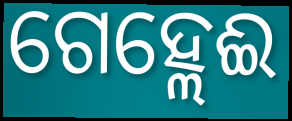
ଗେହ୍ଲେଈ